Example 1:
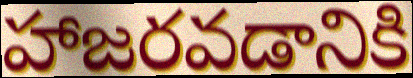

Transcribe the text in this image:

హాజరవడానికి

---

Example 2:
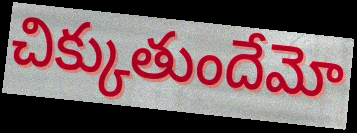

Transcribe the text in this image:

చిక్కుతుందేమో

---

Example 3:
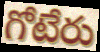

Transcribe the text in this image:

గోటేరు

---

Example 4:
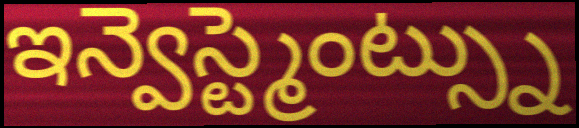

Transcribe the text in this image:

ఇన్వెస్ట్మెంట్స్ను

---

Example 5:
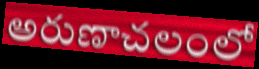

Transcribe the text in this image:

అరుణాచలంలో